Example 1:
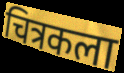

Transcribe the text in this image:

चित्रकला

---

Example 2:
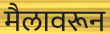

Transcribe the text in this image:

मैलावरून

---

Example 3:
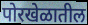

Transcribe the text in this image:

पोरखेळातील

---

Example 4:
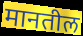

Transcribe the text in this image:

मानतील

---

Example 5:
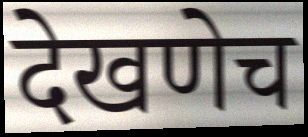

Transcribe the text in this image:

देखणेच